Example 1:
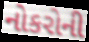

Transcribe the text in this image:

નોકરોની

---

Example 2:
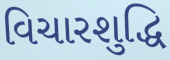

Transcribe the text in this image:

વિચારશુદ્ધિ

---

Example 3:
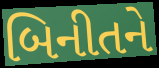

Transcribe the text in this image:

બિનીતને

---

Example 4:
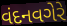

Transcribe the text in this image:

વંદનવગેરે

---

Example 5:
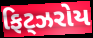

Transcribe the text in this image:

ફિટ્ઝરોય